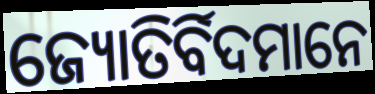
ଜ୍ୟୋତିର୍ବିଦମାନେ